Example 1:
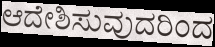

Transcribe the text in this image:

ಆದೇಶಿಸುವುದರಿಂದ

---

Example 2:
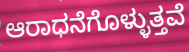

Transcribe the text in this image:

ಆರಾಧನೆಗೊಳ್ಳುತ್ತವೆ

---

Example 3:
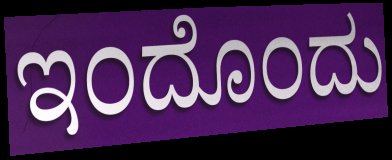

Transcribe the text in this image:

ಇಂದೊಂದು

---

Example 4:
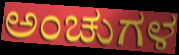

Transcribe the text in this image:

ಅಂಚುಗಳ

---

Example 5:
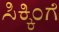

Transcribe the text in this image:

ಸಿಕ್ಕಿಂಗೆ